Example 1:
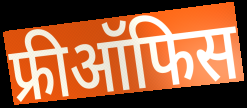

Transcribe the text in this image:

फ्रीऑफिस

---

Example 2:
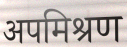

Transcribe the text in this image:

अपमिश्रण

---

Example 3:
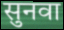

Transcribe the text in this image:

सुनवा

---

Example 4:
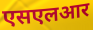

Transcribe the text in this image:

एसएलआर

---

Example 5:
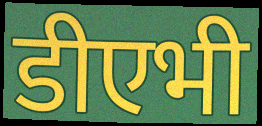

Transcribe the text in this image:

डीएभी